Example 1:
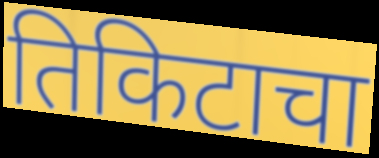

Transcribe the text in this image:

तिकिटाचा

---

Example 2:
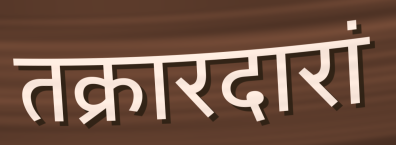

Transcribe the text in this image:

तक्रारदारां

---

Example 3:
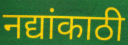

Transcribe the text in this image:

नद्यांकाठी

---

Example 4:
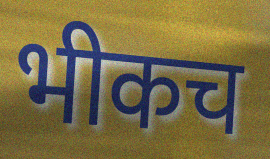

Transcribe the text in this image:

भीकच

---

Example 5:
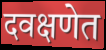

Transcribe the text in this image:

दवक्षणेत